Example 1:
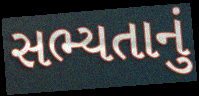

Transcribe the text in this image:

સભ્યતાનું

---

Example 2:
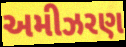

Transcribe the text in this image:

અમીઝરણ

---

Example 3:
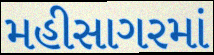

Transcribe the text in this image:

મહીસાગરમાં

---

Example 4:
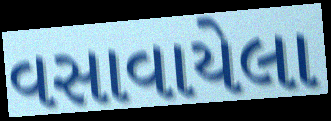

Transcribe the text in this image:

વસાવાયેલા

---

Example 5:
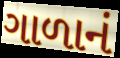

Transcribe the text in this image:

ગાળાનં